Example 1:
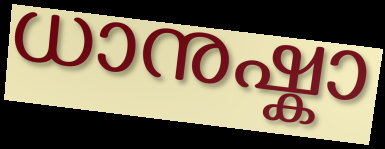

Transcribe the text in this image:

ധാനുഷ്കാ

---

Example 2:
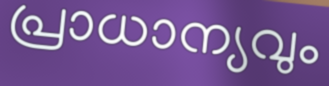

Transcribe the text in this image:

പ്രാധാന്യവും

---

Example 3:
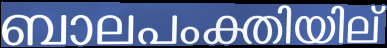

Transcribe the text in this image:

ബാലപംക്തിയില്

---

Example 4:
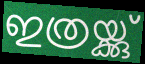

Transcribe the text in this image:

ഇത്രയ്ക്കു്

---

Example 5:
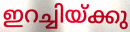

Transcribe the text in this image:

ഇറച്ചിയ്ക്കു